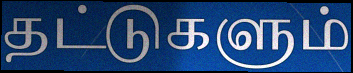
தட்டுகளும்